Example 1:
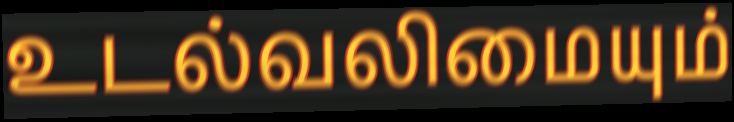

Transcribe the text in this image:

உடல்வலிமையும்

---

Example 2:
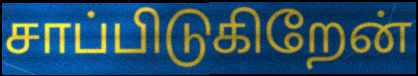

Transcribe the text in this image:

சாப்பிடுகிறேன்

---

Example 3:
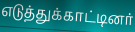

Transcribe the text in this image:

எடுத்துக்காட்டினர்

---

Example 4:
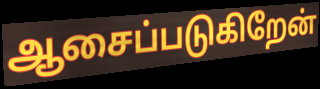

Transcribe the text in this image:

ஆசைப்படுகிறேன்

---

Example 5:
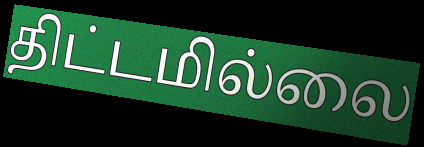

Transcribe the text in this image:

திட்டமில்லை